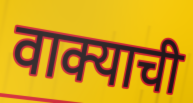
वाक्याची